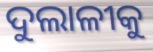
ଦୁଲାଳୀକୁ